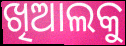
ଖିଆଲକୁ